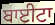
ਬਾਈਟਾ